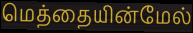
மெத்தையின்மேல்